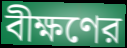
বীক্ষণের